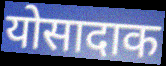
योसादाक